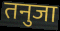
तनुजा